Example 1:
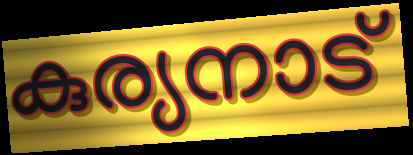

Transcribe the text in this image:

കുര്യനാട്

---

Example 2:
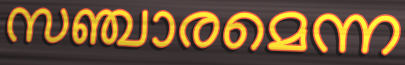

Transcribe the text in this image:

സഞ്ചാരമെന്ന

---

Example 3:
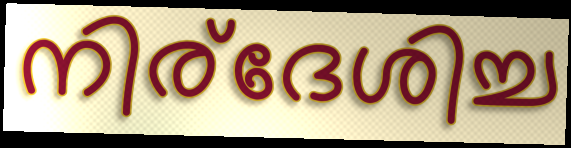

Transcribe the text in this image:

നിര്ദേശിച്ച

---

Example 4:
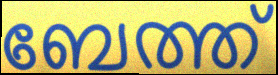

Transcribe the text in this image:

ബേത്ത്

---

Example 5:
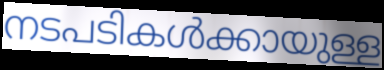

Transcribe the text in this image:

നടപടികൾക്കായുള്ള